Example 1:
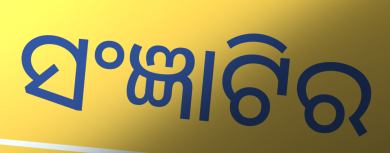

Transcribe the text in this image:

ସଂଜ୍ଞାଟିର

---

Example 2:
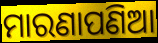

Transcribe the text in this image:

ମାରଣାପଣିଆ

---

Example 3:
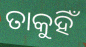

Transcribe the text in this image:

ତାକୁହିଁ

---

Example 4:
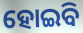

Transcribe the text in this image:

ହୋଇିବ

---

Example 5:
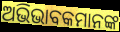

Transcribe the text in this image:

ଅଭିଭାବକମାନଙ୍କ